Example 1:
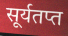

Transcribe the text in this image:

सूर्यतप्त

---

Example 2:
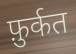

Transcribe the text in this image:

फ़ुर्कत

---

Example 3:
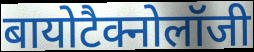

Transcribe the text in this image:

बायोटैक्नोलॉजी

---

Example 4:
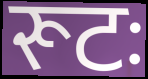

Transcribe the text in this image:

रूटः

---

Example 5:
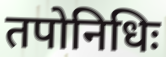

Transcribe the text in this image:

तपोनिधिः